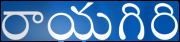
రాయగిరి